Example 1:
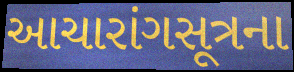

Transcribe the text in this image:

આચારાંગસૂત્રના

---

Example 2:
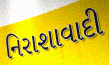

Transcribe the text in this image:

નિરાશાવાદી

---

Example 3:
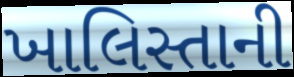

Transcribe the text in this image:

ખાલિસ્તાની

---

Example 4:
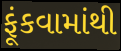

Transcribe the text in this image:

ફૂંકવામાંથી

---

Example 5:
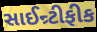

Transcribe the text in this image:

સાઈન્ર્ટીફીક